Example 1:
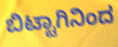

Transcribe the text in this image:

ಬಿಟ್ಟಾಗಿನಿಂದ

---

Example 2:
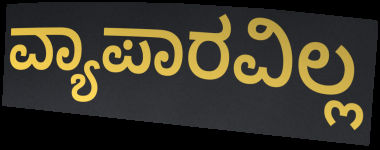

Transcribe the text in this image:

ವ್ಯಾಪಾರವಿಲ್ಲ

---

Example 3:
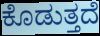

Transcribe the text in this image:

ಕೊಡುತ್ತದೆ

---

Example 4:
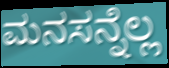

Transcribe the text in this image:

ಮನಸನ್ನೆಲ್ಲ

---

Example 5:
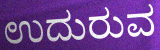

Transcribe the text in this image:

ಉದುರುವ